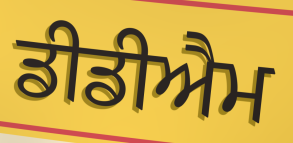
ਡੀਡੀਐਮ